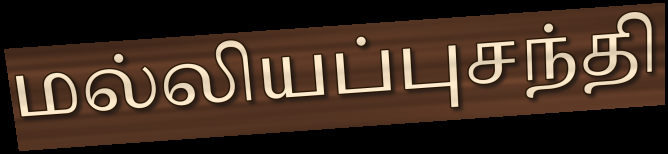
மல்லியப்புசந்தி